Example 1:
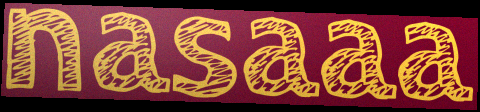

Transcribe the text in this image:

nasaaa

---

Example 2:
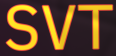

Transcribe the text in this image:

SVT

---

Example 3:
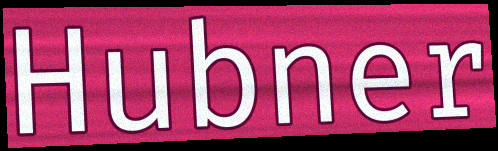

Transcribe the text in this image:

Hubner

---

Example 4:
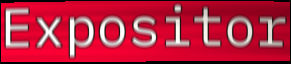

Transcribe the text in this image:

Expositor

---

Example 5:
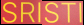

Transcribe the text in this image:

SRISTI